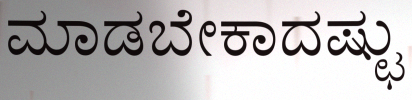
ಮಾಡಬೇಕಾದಷ್ಟು